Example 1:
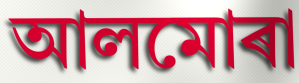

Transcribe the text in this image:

আলমোৰা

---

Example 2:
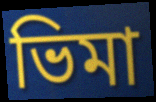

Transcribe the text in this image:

ভিমা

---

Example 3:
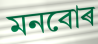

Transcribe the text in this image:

মনবোৰ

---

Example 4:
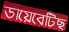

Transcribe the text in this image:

ডায়েবেটিছ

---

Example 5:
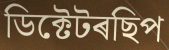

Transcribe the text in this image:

ডিক্টেটৰছিপ